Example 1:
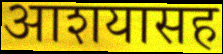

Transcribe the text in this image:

आशयासह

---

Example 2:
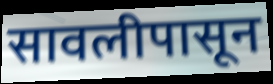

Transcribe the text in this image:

सावलीपासून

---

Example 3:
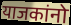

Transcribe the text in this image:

याजकांनो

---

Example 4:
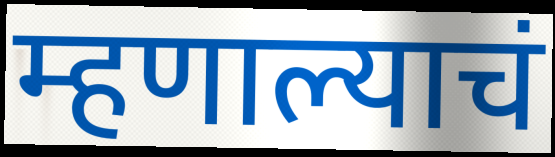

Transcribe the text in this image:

म्हणाल्याचं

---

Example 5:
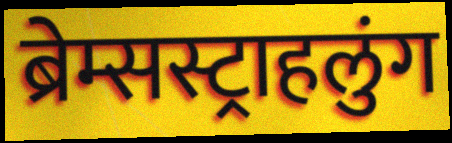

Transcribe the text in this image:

ब्रेम्सस्ट्राहलुंग